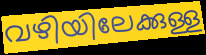
വഴിയിലേക്കുള്ള